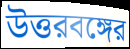
উত্তরবঙ্গের